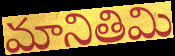
మానితిమి